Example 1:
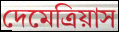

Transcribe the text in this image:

দেমেত্রিয়াস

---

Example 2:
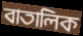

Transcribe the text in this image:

বাতালিক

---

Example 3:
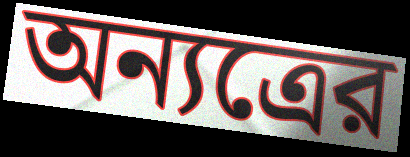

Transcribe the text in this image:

অন্যত্রের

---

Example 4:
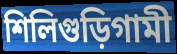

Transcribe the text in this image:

শিলিগুড়িগামী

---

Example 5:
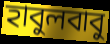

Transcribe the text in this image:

হাবুলবাবু